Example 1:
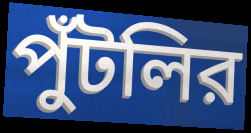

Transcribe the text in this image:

পুঁটলির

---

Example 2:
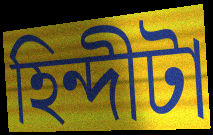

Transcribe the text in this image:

হিন্দীটা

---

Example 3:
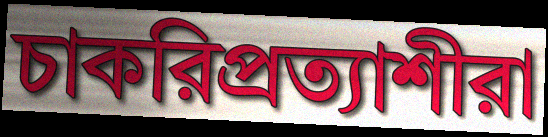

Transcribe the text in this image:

চাকরিপ্রত্যাশীরা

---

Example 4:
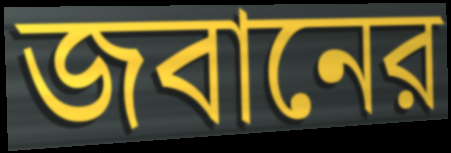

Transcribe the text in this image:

জবানের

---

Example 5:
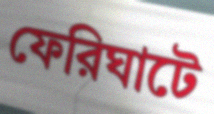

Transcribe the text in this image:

ফেরিঘাটে